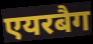
एयरबैग